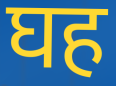
घह